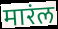
मारंल